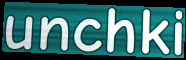
unchki